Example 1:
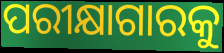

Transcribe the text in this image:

ପରୀକ୍ଷାଗାରକୁ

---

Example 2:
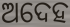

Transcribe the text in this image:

ଅଦେହ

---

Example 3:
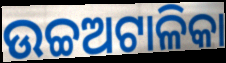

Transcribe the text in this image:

ଉଚ୍ଚଅଟାଳିକା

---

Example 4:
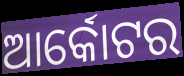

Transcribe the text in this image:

ଆର୍କୋଟର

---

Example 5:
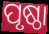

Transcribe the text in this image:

ପୃଷ୍ଠା